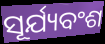
ସୂର୍ଯ୍ୟବଂଶ